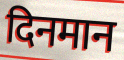
दिनमान